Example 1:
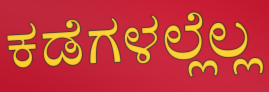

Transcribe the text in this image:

ಕಡೆಗಳಲ್ಲೆಲ್ಲ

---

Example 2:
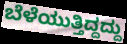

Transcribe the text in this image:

ಬೆಳೆಯುತ್ತಿದ್ದದ್ದು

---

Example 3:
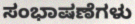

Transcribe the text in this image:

ಸಂಭಾಷಣೆಗಳು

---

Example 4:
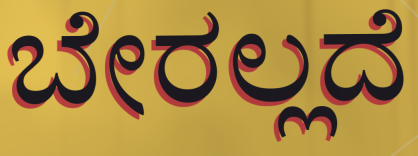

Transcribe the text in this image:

ಬೇರಲ್ಲದೆ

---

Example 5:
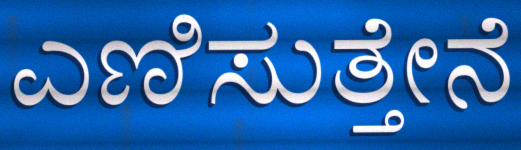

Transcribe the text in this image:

ಎಣಿಸುತ್ತೇನೆ